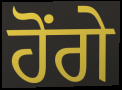
ਹੋਂਗੇ